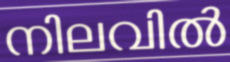
നിലവിൽ